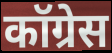
कॉग्रेस